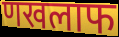
णखलाफ